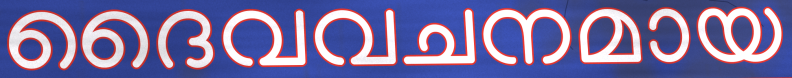
ദൈവവചനമായ